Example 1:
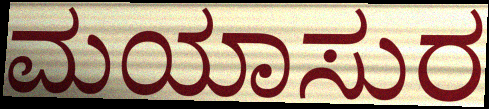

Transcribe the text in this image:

ಮಯಾಸುರ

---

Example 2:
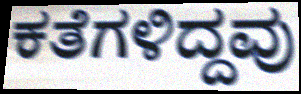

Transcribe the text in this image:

ಕತೆಗಳಿದ್ದವು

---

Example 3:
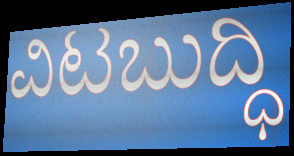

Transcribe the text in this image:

ವಿಟಬುದ್ಧಿ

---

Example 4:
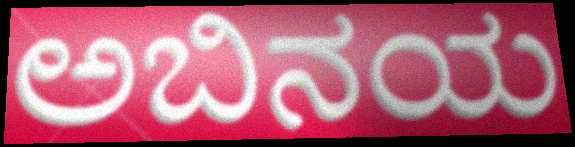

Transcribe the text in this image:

ಅಬಿನಯ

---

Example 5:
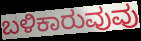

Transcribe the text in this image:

ಬಳಿಕಾರುವುವು